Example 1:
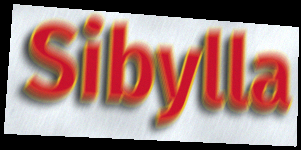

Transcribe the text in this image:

Sibylla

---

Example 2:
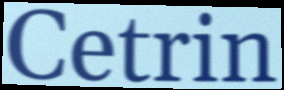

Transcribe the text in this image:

Cetrin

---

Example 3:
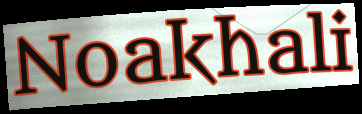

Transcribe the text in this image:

Noakhali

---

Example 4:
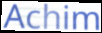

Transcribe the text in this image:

Achim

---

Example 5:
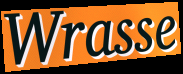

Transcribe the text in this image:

Wrasse